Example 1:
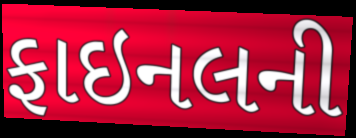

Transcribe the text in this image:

ફાઇનલની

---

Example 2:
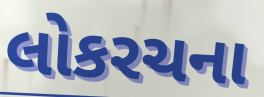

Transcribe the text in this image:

લોકરચના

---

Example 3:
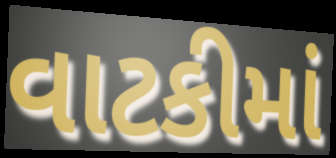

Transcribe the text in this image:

વાટકીમાં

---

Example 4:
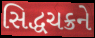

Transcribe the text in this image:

સિદ્ધચક્રને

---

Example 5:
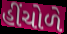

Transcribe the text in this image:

હીંચોળે